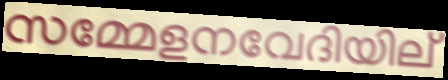
സമ്മേളനവേദിയില്